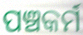
ପଞ୍ଚକର୍ମ